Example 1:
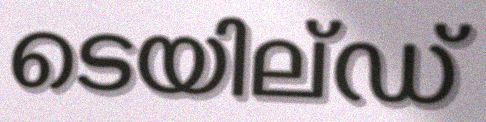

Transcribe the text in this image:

ടെയില്ഡ്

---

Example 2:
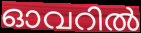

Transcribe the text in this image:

ഓവറിൽ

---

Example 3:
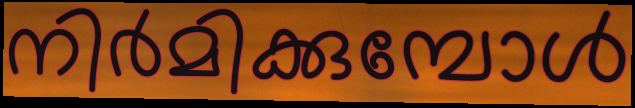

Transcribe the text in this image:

നിർമിക്കുമ്പോൾ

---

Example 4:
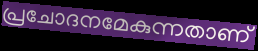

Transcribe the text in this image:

പ്രചോദനമേകുന്നതാണ്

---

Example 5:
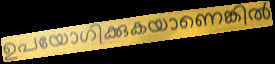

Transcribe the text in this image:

ഉപയോഗിക്കുകയാണെങ്കിൽ